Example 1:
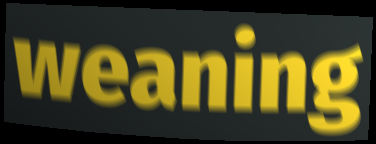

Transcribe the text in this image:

weaning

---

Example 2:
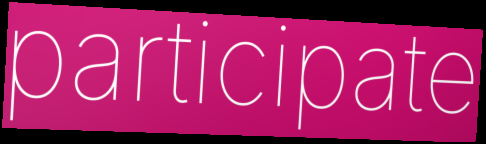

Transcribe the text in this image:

participate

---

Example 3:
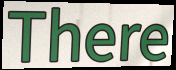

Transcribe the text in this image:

There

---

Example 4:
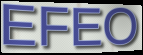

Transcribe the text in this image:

EFEO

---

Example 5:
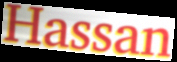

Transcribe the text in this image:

Hassan